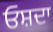
ਓਸ਼ਦਾ